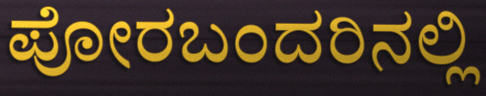
ಪೋರಬಂದರಿನಲ್ಲಿ